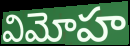
విమోహ